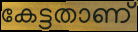
കേട്ടതാണ്